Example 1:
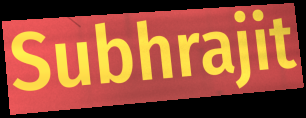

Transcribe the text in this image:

Subhrajit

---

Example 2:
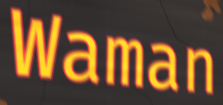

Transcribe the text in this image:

Waman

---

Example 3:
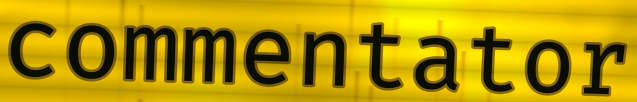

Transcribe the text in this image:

commentator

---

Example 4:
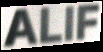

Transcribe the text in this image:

ALIF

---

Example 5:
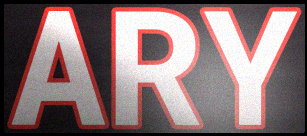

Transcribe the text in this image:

ARY